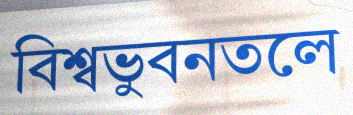
বিশ্বভুবনতলে